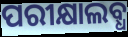
ପରୀକ୍ଷାଲବ୍ଧ